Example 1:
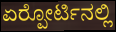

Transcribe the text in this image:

ಏರ್‍ಪೋರ್ಟಿನಲ್ಲಿ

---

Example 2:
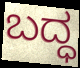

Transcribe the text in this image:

ಬದ್ಧ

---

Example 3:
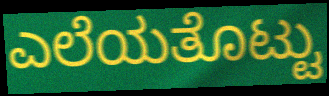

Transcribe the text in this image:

ಎಲೆಯತೊಟ್ಟು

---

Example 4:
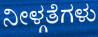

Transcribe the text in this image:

ನೀಳ್ಗತೆಗಳು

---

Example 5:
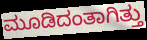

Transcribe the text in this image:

ಮೂಡಿದಂತಾಗಿತ್ತು